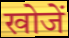
खोजें